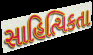
સાહિત્યિકતા